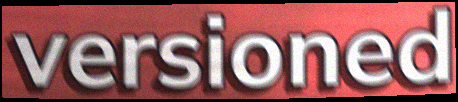
versioned